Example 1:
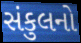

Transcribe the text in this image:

સંકુલનો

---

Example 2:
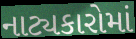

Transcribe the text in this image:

નાટ્યકારોમાં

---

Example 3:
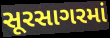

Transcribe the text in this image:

સૂરસાગરમાં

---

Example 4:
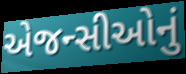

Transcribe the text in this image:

એજન્સીઓનું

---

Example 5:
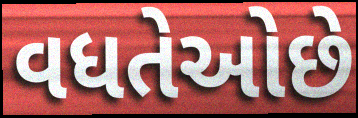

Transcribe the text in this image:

વધતેઓછે